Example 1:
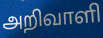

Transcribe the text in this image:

அறிவாளி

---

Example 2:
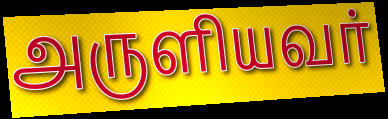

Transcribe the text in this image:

அருளியவர்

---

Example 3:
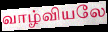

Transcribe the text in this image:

வாழ்வியலே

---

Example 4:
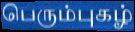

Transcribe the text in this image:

பெரும்புகழ்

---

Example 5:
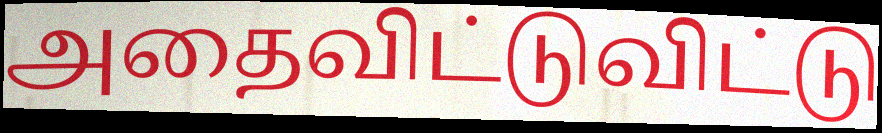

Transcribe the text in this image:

அதைவிட்டுவிட்டு